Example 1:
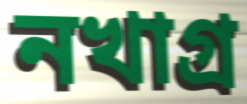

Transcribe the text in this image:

নখাগ্র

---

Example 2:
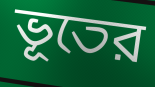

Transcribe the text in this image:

ভূতের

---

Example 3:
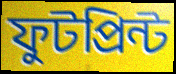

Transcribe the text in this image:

ফুটপ্রিন্ট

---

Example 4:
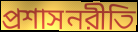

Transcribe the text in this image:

প্রশাসনরীতি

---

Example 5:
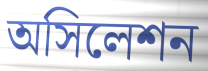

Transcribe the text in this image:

অসিলেশন